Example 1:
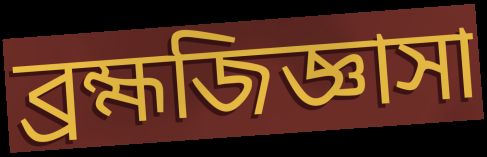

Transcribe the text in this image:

ব্রহ্মজিজ্ঞাসা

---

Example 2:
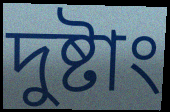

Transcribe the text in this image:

দুষ্টাং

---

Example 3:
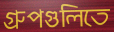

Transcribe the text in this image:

গ্রুপগুলিতে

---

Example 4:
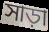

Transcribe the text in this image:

সাড়া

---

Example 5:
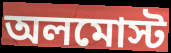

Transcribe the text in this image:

অলমোস্ট